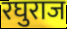
रघुराज